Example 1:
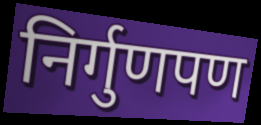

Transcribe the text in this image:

निर्गुणपण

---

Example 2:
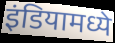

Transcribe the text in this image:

इंडियामध्ये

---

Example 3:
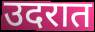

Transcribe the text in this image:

उदरात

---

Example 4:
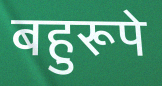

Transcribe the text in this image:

बहुरूपे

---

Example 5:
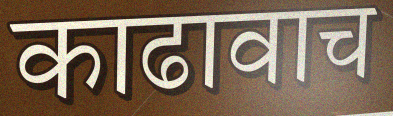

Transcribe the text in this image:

काढावाच